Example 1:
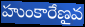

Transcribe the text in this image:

హుంకారేణౖవ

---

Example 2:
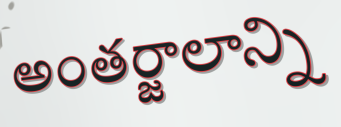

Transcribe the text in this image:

అంతర్జాలాన్ని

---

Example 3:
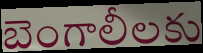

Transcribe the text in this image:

బెంగాలీలకు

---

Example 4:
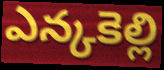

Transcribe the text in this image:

ఎన్కకెల్లి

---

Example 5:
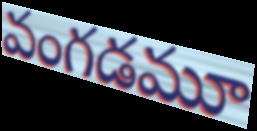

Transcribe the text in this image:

వంగడమూ